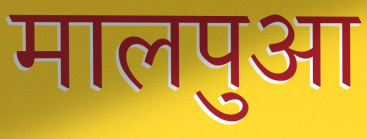
मालपुआ